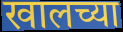
खालच्या